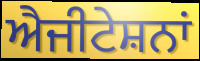
ਐਜੀਟੇਸ਼ਨਾਂ